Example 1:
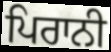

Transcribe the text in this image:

ਪਿਰਾਨੀ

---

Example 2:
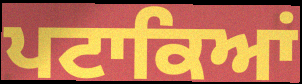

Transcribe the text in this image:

ਪਟਾਕਿਆਂ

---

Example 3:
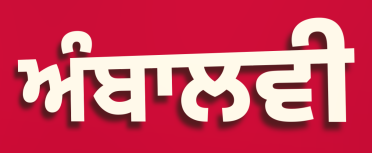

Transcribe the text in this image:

ਅੰਬਾਲਵੀ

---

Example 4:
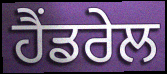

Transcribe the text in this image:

ਹੈਂਡਰੇਲ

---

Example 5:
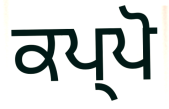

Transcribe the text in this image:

ਕਪ੍ਪੋ